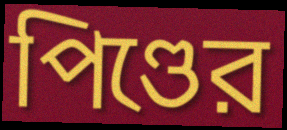
পিণ্ডের